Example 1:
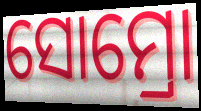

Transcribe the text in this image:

ସୋମ୍ରୋ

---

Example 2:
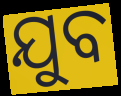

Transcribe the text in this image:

ଯୁବ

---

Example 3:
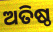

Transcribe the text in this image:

ଅତିଷ୍ଠ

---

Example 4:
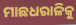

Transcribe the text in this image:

ମାଛଧରାଳିକୁ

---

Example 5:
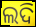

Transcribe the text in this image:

ଲଦି